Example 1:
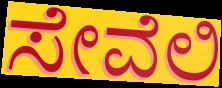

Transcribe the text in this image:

ಸೇವೆಲಿ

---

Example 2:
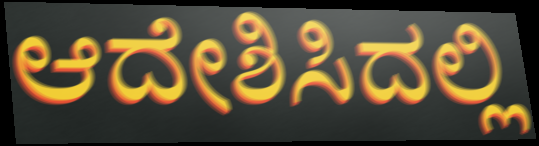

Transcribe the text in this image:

ಆದೇಶಿಸಿದಲ್ಲಿ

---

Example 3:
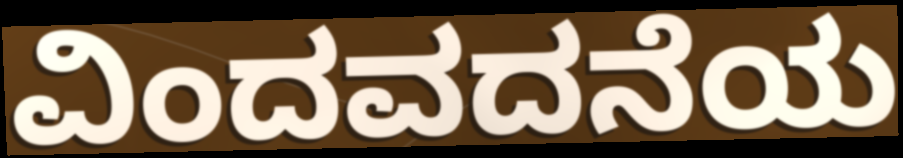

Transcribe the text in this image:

ವಿಂದವದನೆಯ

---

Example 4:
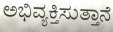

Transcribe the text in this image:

ಅಭಿವ್ಯಕ್ತಿಸುತ್ತಾನೆ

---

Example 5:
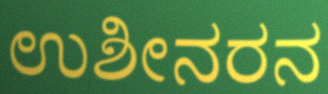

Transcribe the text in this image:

ಉಶೀನರನ